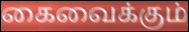
கைவைக்கும்